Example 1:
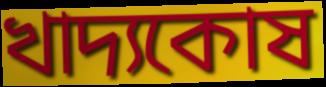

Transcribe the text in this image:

খাদ্যকোষ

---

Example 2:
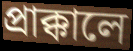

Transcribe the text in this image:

প্রাক্কালে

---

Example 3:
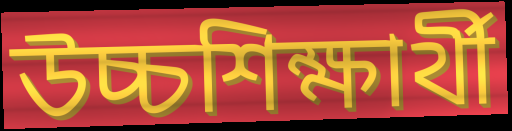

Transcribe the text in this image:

উচ্চশিক্ষার্থী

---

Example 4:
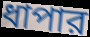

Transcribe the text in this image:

ধাপার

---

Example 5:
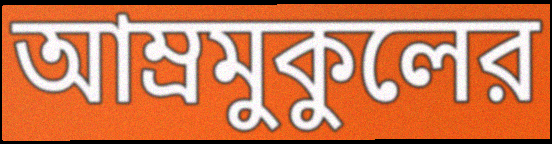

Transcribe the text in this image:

আম্রমুকুলের